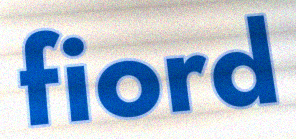
fiord